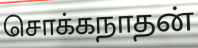
சொக்கநாதன்